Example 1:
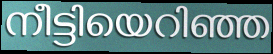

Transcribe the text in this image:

നീട്ടിയെറിഞ്ഞ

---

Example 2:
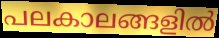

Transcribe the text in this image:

പലകാലങ്ങളിൽ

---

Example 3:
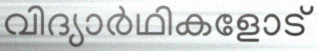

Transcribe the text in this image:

വിദ്യാർഥികളോട്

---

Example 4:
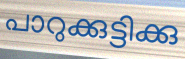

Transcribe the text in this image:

പാറുക്കുട്ടിക്കു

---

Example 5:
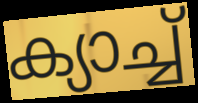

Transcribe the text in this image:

ക്യാച്ച്